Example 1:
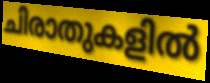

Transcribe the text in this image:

ചിരാതുകളിൽ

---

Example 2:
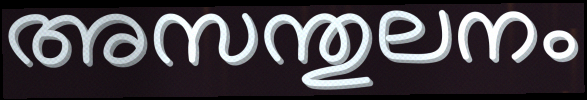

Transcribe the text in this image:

അസന്തുലനം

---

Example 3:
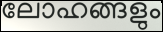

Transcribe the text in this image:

ലോഹങ്ങളും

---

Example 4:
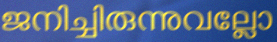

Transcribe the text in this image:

ജനിച്ചിരുന്നുവല്ലോ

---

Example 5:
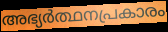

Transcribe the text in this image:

അഭ്യർത്ഥനപ്രകാരം